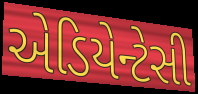
એડિયેન્ટેસી